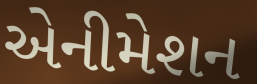
એનીમેશન